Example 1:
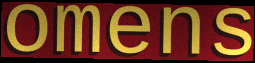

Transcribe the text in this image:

omens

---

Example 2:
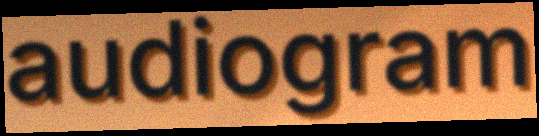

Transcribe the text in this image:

audiogram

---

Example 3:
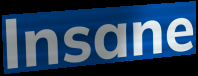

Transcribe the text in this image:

Insane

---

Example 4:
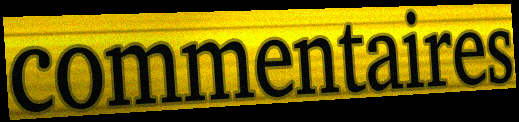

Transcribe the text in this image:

commentaires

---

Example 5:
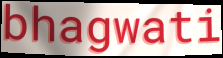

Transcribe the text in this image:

bhagwati